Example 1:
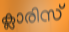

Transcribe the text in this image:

ക്ലാരിസ്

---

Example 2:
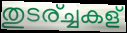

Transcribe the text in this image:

തുടര്ച്ചകള്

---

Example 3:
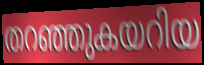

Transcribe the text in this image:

തറഞ്ഞുകയറിയ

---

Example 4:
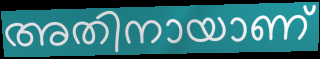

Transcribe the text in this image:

അതിനായാണ്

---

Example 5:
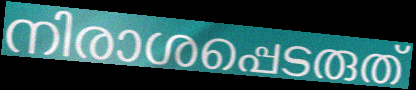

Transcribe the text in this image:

നിരാശപ്പെടരുത്